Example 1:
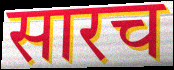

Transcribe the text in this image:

सारच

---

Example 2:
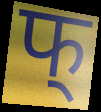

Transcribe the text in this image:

फ्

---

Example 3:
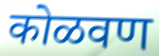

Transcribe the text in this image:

कोळवण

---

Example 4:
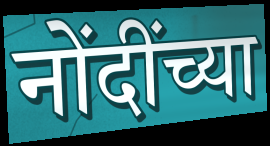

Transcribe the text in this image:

नोंदींच्या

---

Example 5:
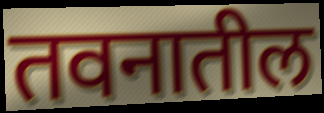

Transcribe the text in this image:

तवनातील